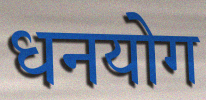
धनयोग